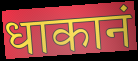
धाकानं